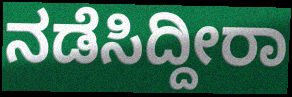
ನಡೆಸಿದ್ದೀರಾ